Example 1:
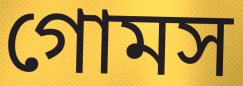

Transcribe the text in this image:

গোমস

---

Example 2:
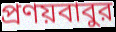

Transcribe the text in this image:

প্রণয়বাবুর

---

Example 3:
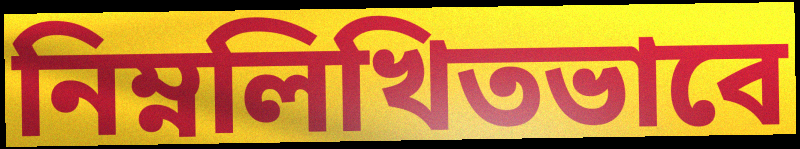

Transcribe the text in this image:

নিম্নলিখিতভাবে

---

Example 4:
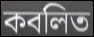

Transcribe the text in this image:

কবলিত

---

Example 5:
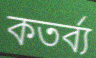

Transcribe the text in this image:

কতর্ব্য